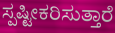
ಸ್ಪಷ್ಟೀಕರಿಸುತ್ತಾರೆ